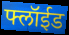
फ्लॉईड